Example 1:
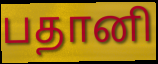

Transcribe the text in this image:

பதானி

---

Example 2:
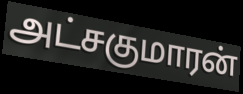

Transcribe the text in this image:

அட்சகுமாரன்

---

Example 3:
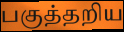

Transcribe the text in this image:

பகுத்தறிய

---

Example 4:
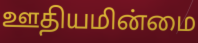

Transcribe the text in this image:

ஊதியமின்மை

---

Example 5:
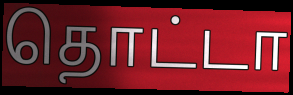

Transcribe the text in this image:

தொட்டா